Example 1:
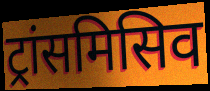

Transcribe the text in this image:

ट्रांसमिसिव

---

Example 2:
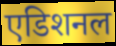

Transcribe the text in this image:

एडिशनल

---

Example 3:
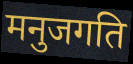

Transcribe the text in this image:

मनुजगति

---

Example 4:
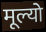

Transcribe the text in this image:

मूल्यो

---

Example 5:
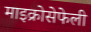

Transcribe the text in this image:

माइक्रोसेफेली